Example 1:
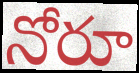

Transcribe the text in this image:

నోరూ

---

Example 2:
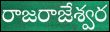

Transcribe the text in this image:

రాజరాజేశ్వర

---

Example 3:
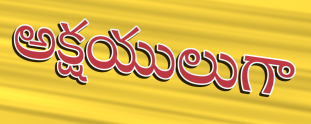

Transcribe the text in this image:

అక్షయులుగా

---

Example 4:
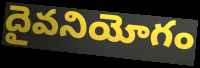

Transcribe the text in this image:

దైవనియోగం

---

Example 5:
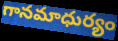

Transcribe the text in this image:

గానమాధుర్యం